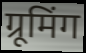
ग्रूमिंग